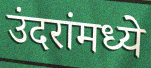
उंदरांमध्ये